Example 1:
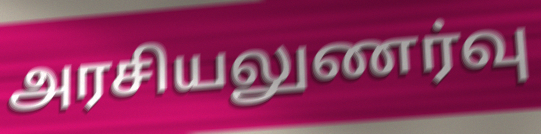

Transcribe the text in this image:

அரசியலுணர்வு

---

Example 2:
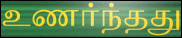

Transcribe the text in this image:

உணர்ந்தது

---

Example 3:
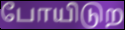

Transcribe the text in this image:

போயிடுற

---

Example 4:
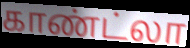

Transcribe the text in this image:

காண்ட்லா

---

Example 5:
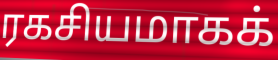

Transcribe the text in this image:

ரகசியமாகக்